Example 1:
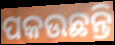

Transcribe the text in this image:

ପକଉଛନ୍ତି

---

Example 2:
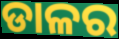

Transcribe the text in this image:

ଡାଳର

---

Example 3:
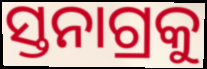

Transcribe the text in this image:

ସ୍ତନାଗ୍ରକୁ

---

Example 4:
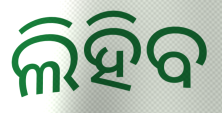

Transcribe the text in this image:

ଲିହିବ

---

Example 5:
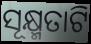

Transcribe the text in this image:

ସୂକ୍ଷ୍ମତାଟି